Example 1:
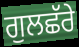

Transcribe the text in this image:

ਗੁਲਛੱਰੇ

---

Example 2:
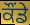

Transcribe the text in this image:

ਕੌਂਡੇ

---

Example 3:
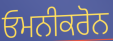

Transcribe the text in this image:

ਓਮਨੀਕਰੋਨ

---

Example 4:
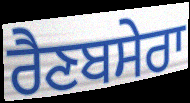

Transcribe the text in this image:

ਰੈਣਬਸੇਰਾ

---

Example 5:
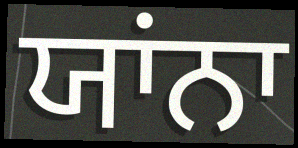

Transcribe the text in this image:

ਯਾਂਨਾ